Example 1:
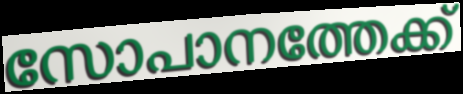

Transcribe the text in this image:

സോപാനത്തേക്ക്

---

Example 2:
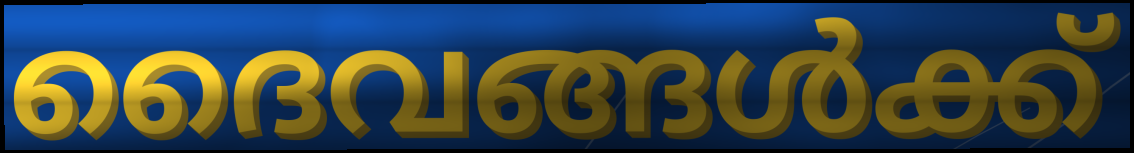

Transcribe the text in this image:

ദൈവങ്ങൾക്ക്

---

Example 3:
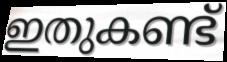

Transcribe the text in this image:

ഇതുകണ്ട്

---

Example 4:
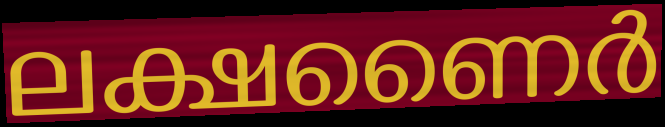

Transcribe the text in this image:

ലക്ഷണൈർ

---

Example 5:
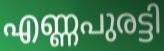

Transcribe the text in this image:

എണ്ണപുരട്ടി